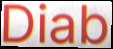
Diab